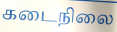
கடைநிலை